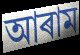
আৰাম